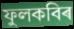
ফুলকবিৰ